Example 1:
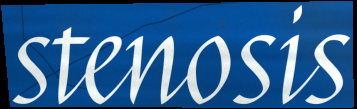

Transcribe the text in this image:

stenosis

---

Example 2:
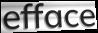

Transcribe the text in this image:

efface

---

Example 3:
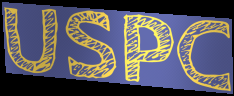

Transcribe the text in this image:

USPC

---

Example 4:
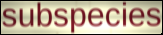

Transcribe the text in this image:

subspecies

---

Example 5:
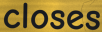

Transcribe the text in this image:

closes